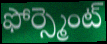
ఫోర్స్మెంట్